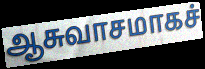
ஆசுவாசமாகச்